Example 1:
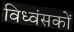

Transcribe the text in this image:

विध्वंसकों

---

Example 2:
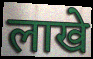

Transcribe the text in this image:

लाखे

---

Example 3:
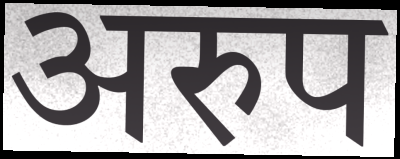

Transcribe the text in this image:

अरुप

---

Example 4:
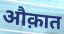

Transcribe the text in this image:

औक़ात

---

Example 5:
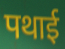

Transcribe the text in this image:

पथाई